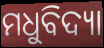
ମଧୁବିଦ୍ୟା